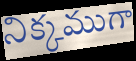
నిక్కముగా